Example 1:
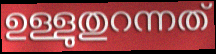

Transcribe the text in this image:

ഉള്ളുതുറന്നത്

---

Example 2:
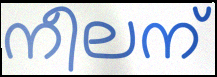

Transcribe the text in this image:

നീലന്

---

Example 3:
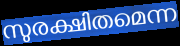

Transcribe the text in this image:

സുരക്ഷിതമെന്ന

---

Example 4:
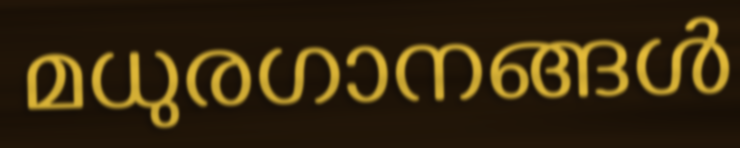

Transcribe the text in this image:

മധുരഗാനങ്ങൾ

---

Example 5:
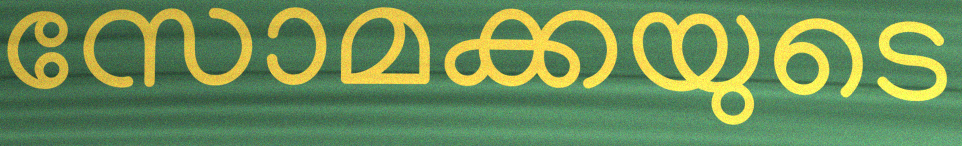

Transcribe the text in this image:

സോമക്കയുടെ